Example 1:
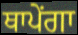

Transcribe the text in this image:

ਥਾਪੇਂਗਾ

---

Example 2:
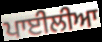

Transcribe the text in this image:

ਪਾਈਲੀਆ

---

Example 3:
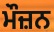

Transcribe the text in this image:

ਮੌਜ਼ਨ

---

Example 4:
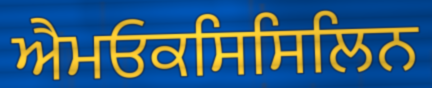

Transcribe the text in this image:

ਐਮਓਕਸਿਸਿਲਿਨ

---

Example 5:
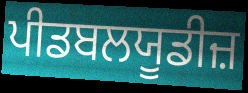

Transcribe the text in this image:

ਪੀਡਬਲਯੂਡੀਜ਼